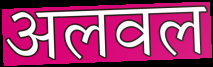
अलवल